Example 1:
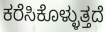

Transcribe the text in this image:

ಕರೆಸಿಕೊಳ್ಳುತ್ತದೆ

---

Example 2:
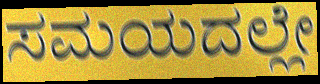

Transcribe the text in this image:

ಸಮಯದಲ್ಲೇ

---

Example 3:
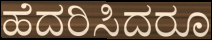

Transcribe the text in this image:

ಹೆದರಿಸಿದರೂ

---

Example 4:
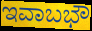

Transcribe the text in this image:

ಇವಾಬಭೌ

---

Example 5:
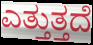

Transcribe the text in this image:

ಎತ್ತುತ್ತದೆ